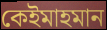
কেইমাহমান